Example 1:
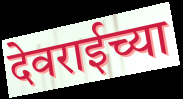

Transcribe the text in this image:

देवराईच्या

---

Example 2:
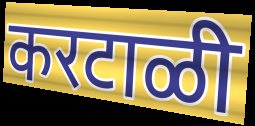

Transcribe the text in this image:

करटाळी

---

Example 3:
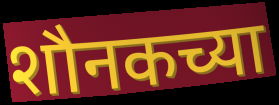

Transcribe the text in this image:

शौनकच्या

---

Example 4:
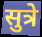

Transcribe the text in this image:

सुत्रे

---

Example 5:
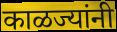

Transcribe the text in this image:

काळज्यांनी